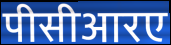
पीसीआरए